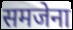
समजेना